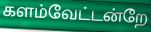
களம்வேட்டன்றே